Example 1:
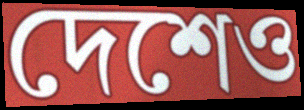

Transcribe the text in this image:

দেশেও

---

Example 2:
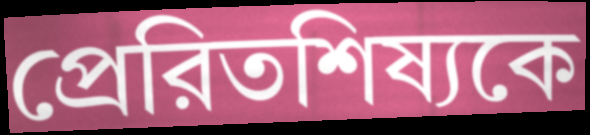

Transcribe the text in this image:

প্রেরিতশিষ্যকে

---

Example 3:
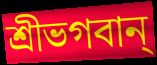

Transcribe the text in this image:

শ্রীভগবান্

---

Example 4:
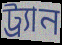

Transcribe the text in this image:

ট্র্যান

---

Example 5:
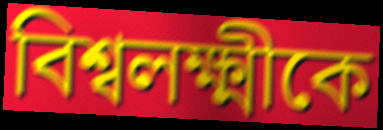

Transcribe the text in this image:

বিশ্বলক্ষ্মীকে